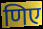
णिए